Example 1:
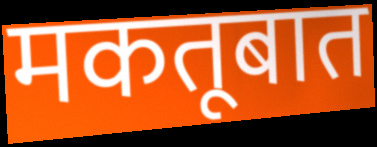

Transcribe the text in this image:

मकतूबात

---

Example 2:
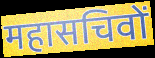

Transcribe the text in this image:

महासचिवों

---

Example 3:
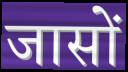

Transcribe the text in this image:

जासों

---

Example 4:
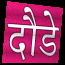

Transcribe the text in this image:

दौडे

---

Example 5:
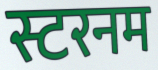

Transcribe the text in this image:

स्टरनम